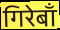
गिरेबाँ